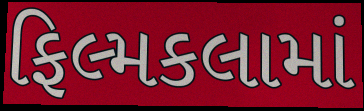
ફિલ્મકલામાં